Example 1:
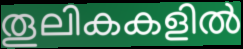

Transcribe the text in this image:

തൂലികകളിൽ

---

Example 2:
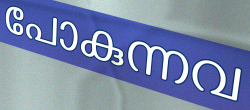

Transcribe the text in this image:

പോകുന്നവ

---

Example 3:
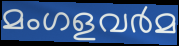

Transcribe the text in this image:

മംഗളവർമ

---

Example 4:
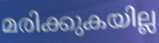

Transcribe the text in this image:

മരിക്കുകയില്ല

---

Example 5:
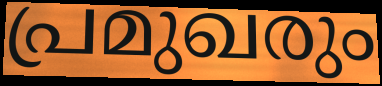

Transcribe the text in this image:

പ്രമുഖരും